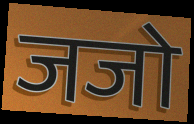
जजो